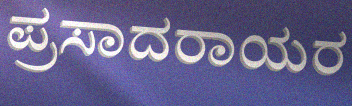
ಪ್ರಸಾದರಾಯರ